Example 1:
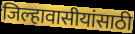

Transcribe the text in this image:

जिल्हावासीयांसाठी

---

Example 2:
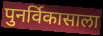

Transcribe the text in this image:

पुनर्विकासाला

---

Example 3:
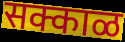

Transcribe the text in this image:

सक्काळ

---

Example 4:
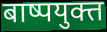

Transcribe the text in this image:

बाष्पयुक्त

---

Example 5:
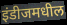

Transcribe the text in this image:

इंडीजमधील